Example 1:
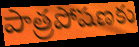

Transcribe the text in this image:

పాత్రపోషణకు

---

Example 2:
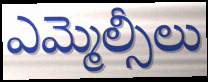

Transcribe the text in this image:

ఎమ్మెల్సీలు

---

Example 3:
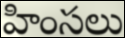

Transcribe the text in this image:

హింసలు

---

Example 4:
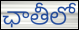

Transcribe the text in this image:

ఛాతీలో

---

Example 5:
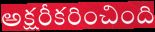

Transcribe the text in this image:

అక్షరీకరించింది